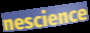
nescience